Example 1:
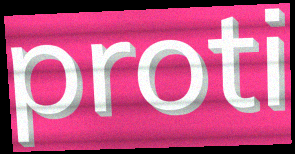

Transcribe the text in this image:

proti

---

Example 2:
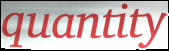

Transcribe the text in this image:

quantity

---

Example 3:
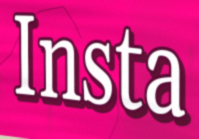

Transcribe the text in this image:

Insta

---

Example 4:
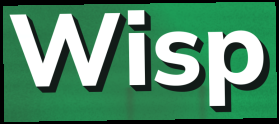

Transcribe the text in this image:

Wisp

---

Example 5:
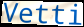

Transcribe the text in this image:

Vetti